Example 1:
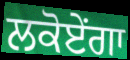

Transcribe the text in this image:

ਲਕੋਏਂਗਾ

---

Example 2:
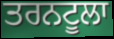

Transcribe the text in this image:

ਤਰਨਟੂਲਾ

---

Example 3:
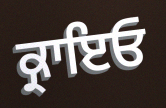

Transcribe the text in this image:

ਕ੍ਰਾਇਓ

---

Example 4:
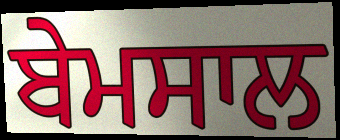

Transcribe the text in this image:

ਬੇਮਸਾਲ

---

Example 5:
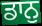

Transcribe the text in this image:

ਡਾਨੁ